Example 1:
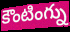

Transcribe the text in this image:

కౌంటింగ్ను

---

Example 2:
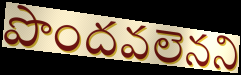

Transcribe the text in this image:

పొందవలెనని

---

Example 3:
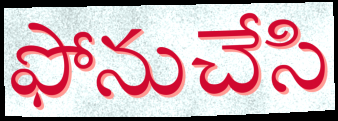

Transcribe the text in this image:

ఫోనుచేసి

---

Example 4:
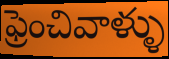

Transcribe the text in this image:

ఫ్రెంచివాళ్ళు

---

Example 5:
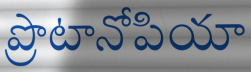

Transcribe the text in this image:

ప్రొటానోపియా